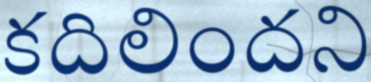
కదిలిందని